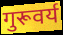
गुरूवर्य